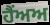
ਹੈਂਅਅ